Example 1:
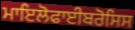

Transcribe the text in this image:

ਮਾਇਲੋਫਾਈਬਰੋਸਿਸ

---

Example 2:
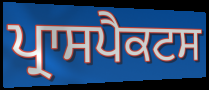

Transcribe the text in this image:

ਪ੍ਰਾਸਪੈਕਟਸ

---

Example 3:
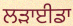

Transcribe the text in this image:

ਲੜਾਈਡਾ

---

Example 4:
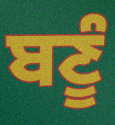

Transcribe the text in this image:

ਬਣੂੰ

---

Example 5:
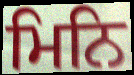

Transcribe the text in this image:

ਮਿਨਿ